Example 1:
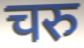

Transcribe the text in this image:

चरु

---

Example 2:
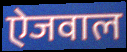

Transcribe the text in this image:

ऐजवाल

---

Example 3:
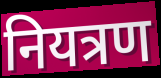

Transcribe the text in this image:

नियत्रण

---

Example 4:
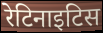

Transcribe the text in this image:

रेटिनाइटिस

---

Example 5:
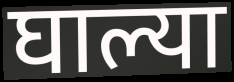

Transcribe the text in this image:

घाल्या